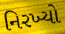
નિરખ્યો